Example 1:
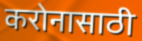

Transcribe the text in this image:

करोनासाठी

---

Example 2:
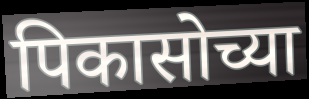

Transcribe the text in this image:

पिकासोच्या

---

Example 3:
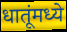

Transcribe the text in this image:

धातूंमध्ये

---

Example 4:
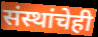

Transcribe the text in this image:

संस्थांचेही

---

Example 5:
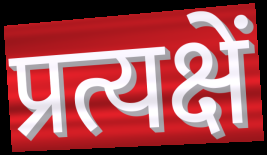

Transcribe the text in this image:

प्रत्यक्षें